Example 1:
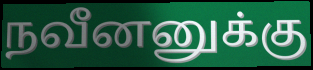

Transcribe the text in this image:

நவீனனுக்கு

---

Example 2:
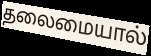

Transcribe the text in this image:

தலைமையால்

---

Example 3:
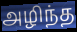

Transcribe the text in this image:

அழிந்த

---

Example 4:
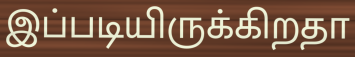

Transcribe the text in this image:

இப்படியிருக்கிறதா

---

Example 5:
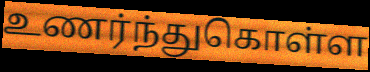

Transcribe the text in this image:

உணர்ந்துகொள்ள